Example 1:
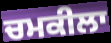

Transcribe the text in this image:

ਚਮਕੀਲਾ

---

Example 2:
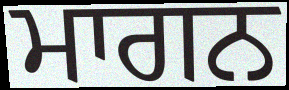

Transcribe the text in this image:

ਮਾਗਨ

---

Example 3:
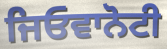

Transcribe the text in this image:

ਜਿਓਵਾਨੋਟੀ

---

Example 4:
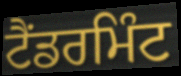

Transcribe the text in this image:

ਟੈਂਡਰਮਿੰਟ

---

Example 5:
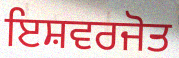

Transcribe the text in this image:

ਇਸ਼ਵਰਜੋਤ